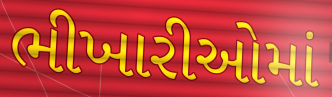
ભીખારીઓમાં